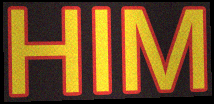
HIM